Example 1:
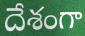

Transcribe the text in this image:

దేశంగా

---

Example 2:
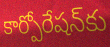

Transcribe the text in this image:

కార్పోరేషన్‌కు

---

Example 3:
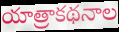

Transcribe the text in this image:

యాత్రాకథనాల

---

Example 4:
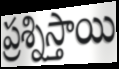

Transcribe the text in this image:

ప్రశ్నిస్తాయి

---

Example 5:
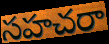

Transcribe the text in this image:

సహచరా